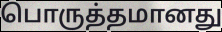
பொருத்தமானது